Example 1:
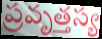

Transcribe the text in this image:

ప్రవృత్తస్య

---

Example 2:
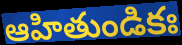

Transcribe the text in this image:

ఆహితుండికః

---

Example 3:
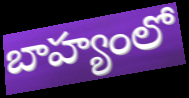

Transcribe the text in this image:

బాహ్యంలో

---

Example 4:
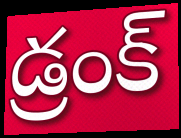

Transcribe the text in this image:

డ్రంక్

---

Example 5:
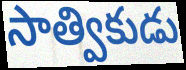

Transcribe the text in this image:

సాత్వికుడు